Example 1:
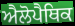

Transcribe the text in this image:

ਐਲੋਪੈਥਿਕ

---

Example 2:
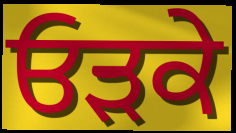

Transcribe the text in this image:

ਓੜਕੇ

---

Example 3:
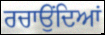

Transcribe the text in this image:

ਰਚਾਉਂਦਿਆਂ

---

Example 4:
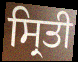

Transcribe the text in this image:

ਸ੍ਰਿਤੀ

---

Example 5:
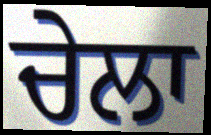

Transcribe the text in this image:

ਚੇਲਾ